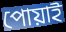
পোয়াই